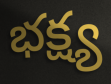
భక్ష్య